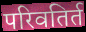
परिवतिर्त